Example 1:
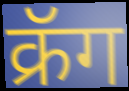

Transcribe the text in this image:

क्रॅग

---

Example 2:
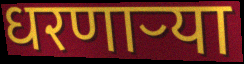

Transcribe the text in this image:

धरणाऱ्या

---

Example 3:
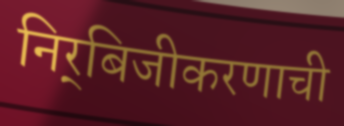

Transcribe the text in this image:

निर्बिजीकरणाची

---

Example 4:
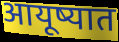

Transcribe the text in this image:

आयूष्यात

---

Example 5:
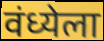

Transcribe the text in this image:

वंध्येला